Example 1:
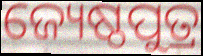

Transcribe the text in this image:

ଜ୍ୟେଷ୍ଠପୁତ୍ର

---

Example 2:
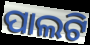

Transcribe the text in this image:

ପାଲଟି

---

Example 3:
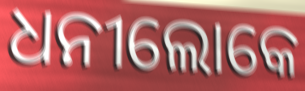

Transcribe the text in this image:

ଧନୀଲୋକେ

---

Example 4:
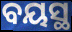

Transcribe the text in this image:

ବୟସ୍ଥ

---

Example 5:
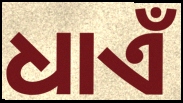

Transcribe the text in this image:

ଧାଏଁ